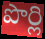
పొర్లి